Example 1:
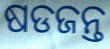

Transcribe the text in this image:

ଷଡଜନ୍ତ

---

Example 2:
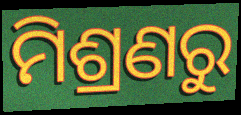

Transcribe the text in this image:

ମିଶ୍ରଣରୁ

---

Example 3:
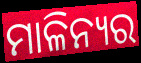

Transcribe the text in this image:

ମାଳିନ୍ୟର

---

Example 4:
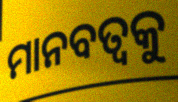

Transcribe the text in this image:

ମାନବତ୍ବକୁ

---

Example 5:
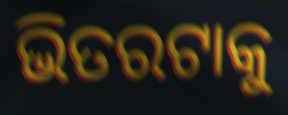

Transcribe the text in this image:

ଭିତରଟାକୁ